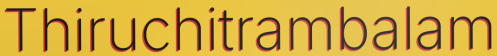
Thiruchitrambalam